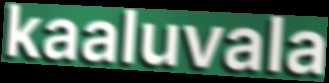
kaaluvala